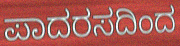
ಪಾದರಸದಿಂದ